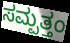
ಸಮ್ಪತ್ತಂ